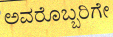
ಅವರೊಬ್ಬರಿಗೇ